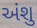
અંશુ